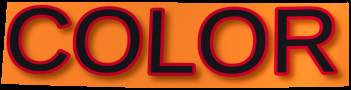
COLOR